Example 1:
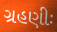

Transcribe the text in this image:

ગ્રહણીઃ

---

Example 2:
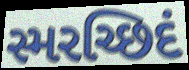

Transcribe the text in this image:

સ્મરચ્છિદં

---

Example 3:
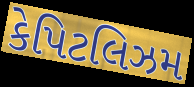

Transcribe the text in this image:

કેપિટલિઝમ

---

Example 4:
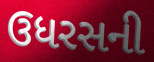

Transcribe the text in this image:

ઉધરસની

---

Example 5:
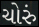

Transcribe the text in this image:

ચોરું